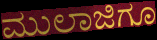
ಮುಲಾಜಿಗೂ